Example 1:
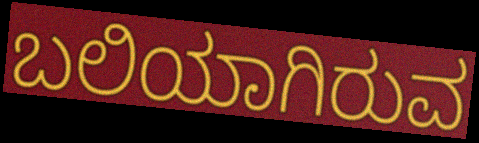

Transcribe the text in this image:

ಬಲಿಯಾಗಿರುವ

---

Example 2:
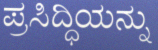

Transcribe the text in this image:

ಪ್ರಸಿದ್ಧಿಯನ್ನು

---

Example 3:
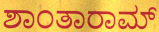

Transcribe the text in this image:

ಶಾಂತಾರಾಮ್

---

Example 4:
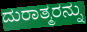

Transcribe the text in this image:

ದುರಾತ್ಮರನ್ನು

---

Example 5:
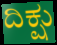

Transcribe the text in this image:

ದಿಕ್ಷು